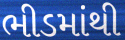
ભીડમાંથી